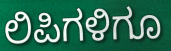
ಲಿಪಿಗಳಿಗೂ